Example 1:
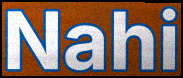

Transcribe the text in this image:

Nahi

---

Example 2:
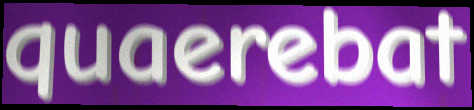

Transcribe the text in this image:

quaerebat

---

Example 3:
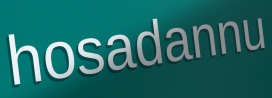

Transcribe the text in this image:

hosadannu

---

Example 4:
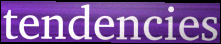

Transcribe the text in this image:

tendencies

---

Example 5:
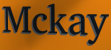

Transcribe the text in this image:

Mckay